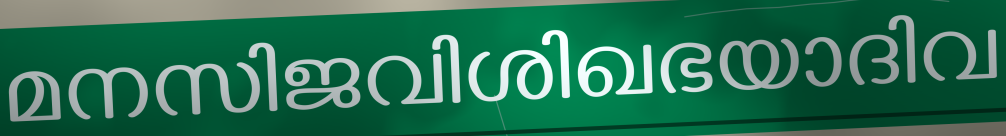
മനസിജവിശിഖഭയാദിവ